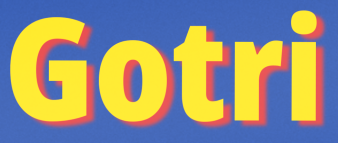
Gotri